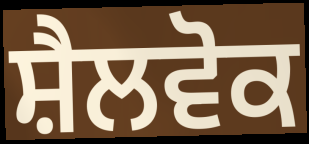
ਸ਼ੈਲਵੋਕ